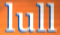
lull